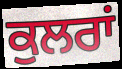
ਕੁਲਰਾਂ